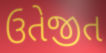
ઉતેજીત